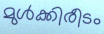
മുൾക്കിരീടം